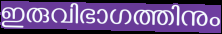
ഇരുവിഭാഗത്തിനും